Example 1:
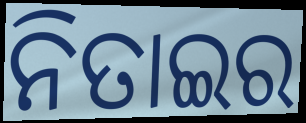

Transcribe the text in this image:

ନିତାଇର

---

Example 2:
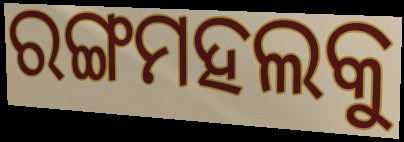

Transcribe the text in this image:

ରଙ୍ଗମହଲକୁ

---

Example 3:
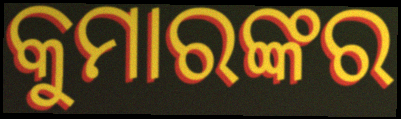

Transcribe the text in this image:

କୁମାରଙ୍କର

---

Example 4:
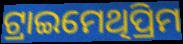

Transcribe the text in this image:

ଟ୍ରାଇମେଥିପ୍ରିମ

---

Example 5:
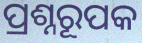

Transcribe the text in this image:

ପ୍ରଶ୍ନରୂପକ